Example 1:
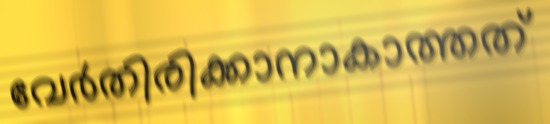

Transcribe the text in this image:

വേർതിരിക്കാനാകാത്തത്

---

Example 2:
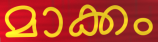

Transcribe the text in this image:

മാക്കം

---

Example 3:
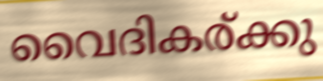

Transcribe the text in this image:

വൈദികര്ക്കു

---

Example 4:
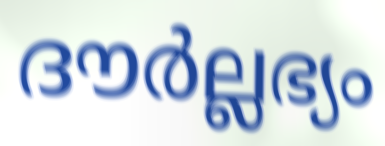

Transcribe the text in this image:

ദൗർല്ലഭ്യം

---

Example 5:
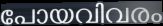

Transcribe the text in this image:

പോയവിവരം